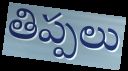
తిప్పలు